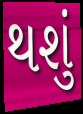
થશું